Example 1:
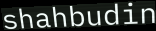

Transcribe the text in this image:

shahbudin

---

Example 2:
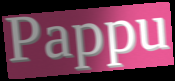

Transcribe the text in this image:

Pappu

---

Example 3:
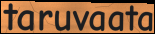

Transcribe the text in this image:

taruvaata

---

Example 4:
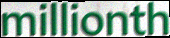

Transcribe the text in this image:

millionth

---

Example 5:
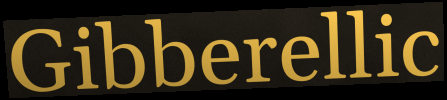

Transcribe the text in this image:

Gibberellic